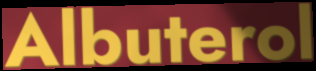
Albuterol